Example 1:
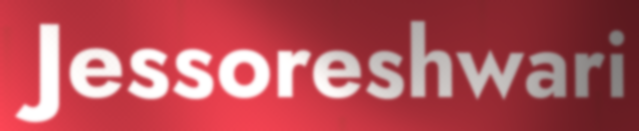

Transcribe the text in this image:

Jessoreshwari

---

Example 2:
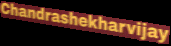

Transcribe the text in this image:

Chandrashekharvijay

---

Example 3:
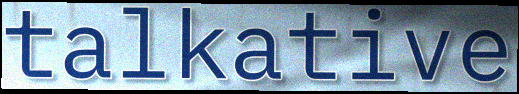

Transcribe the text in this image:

talkative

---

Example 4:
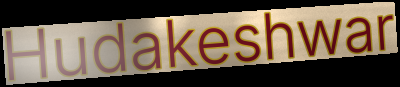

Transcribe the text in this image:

Hudakeshwar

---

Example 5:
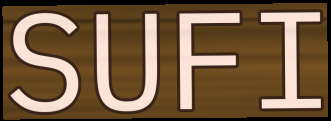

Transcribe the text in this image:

SUFI